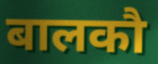
बालकौ